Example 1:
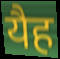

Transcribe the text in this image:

यैह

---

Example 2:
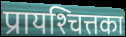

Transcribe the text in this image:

प्रायश्चित्तका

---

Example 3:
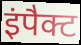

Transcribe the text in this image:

इंपैक्ट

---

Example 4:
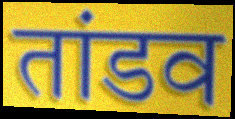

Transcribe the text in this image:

तांडव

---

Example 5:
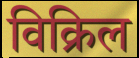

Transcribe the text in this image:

विक्रिल